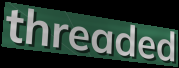
threaded